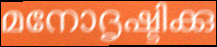
മനോദൃഷ്ടിക്കു